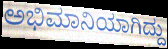
ಅಭಿಮಾನಿಯಾಗಿದ್ದು